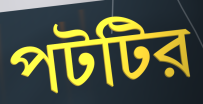
পটটির